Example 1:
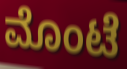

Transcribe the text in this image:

ಮೊಂಟೆ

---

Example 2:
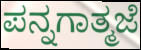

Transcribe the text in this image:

ಪನ್ನಗಾತ್ಮಜೆ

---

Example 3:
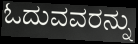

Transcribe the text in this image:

ಓದುವವರನ್ನು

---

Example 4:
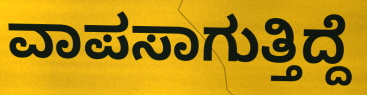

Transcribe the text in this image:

ವಾಪಸಾಗುತ್ತಿದ್ದೆ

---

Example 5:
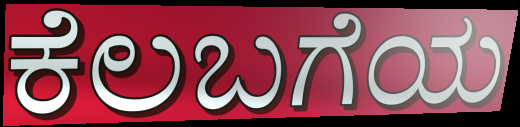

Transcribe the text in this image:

ಕೆಲಬಗೆಯ